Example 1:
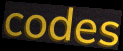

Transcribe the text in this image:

codes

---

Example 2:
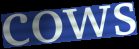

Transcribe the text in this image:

cows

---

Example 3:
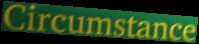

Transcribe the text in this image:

Circumstance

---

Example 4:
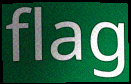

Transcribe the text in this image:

flag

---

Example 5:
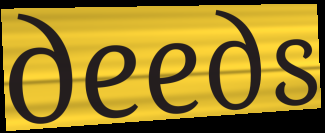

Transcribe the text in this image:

deeds